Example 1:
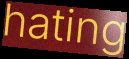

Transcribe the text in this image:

hating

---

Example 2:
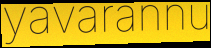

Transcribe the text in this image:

yavarannu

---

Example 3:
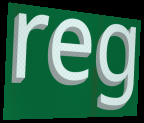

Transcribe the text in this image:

reg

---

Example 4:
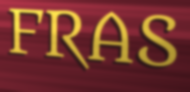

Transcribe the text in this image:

FRAS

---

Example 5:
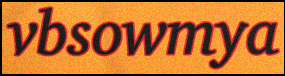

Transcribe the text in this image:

vbsowmya